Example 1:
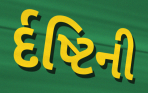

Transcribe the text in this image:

ર્દષ્ટિની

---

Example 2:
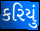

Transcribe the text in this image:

કરિયું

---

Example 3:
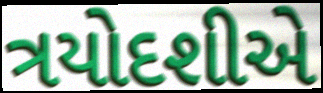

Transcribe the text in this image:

ત્રયોદશીએ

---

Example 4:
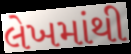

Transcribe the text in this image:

લેખમાંથી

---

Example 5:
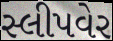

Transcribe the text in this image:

સ્લીપવેર